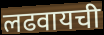
लढवायची